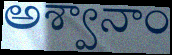
అశ్వానాం